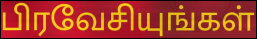
பிரவேசியுங்கள்